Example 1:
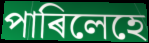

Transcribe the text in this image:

পাৰিলেহে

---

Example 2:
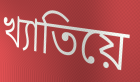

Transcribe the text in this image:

খ্যাতিয়ে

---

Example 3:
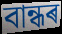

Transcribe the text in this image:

বান্ধৰ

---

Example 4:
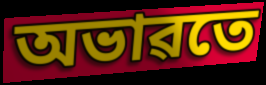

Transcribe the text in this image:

অভাৱতে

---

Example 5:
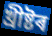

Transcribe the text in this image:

খ্ৰীষ্টৰ